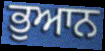
ਭੁਆਨ